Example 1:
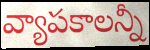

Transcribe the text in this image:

వ్యాపకాలన్నీ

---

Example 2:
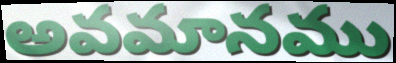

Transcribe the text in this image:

అవమానము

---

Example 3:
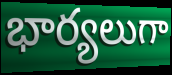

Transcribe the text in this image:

భార్యలుగా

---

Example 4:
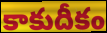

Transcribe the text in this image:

కాకుదీకం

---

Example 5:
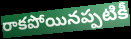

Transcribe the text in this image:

రాకపోయినప్పటికీ